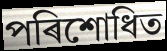
পৰিশোধিত